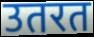
उतरत